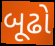
બૂઢો